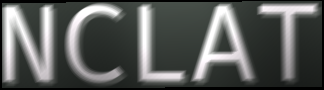
NCLAT